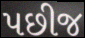
પછીજ